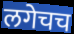
लगेचच